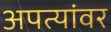
अपत्यांवर